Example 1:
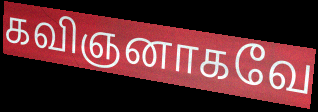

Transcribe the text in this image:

கவிஞனாகவே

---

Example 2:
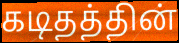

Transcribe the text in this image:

கடிதத்தின்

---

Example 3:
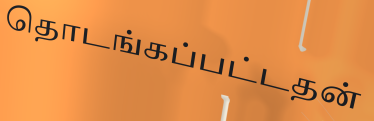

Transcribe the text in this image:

தொடங்கப்பட்டதன்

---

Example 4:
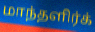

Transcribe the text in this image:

மாந்தளிர்க்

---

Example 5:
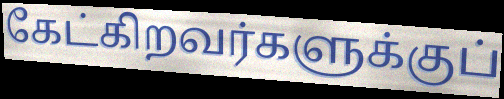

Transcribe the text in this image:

கேட்கிறவர்களுக்குப்